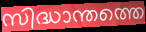
സിദ്ധാന്തത്തെ